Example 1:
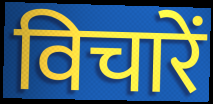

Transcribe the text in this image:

विचारें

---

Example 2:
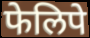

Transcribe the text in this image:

फेलिपे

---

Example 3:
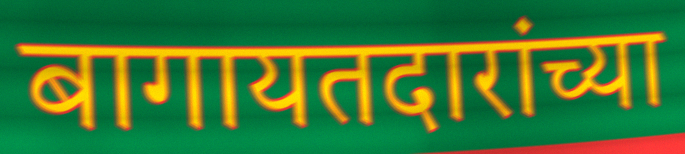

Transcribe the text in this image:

बागायतदारांच्या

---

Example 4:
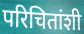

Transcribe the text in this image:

परिचितांशी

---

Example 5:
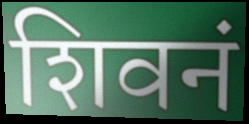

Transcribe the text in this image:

शिवनं